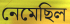
নেমেছিল